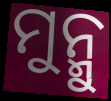
ମୁନ୍ମୁ